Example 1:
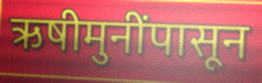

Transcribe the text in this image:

ऋषीमुनींपासून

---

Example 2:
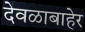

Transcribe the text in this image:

देवळाबाहेर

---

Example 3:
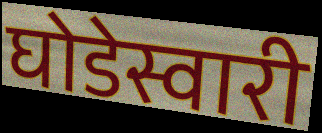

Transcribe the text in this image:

घोडेस्वारी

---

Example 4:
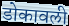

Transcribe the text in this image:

डोकावली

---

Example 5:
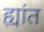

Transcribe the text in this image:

ह्यांत